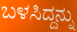
ಬಳಸಿದ್ದನ್ನು